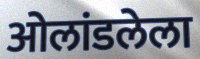
ओलांडलेला